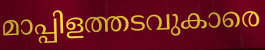
മാപ്പിളത്തടവുകാരെ